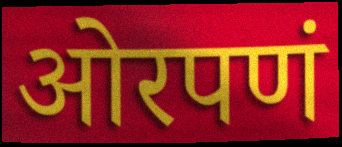
ओरपणं